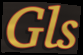
Gls